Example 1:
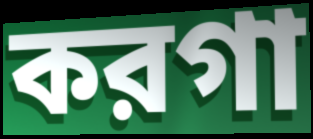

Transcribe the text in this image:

করগা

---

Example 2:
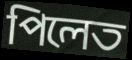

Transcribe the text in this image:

পিলেত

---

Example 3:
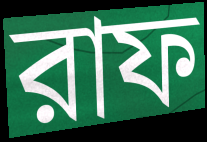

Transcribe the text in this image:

রাফ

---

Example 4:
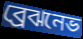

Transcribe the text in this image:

ব্রেঝনেভ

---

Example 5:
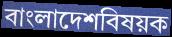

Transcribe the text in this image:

বাংলাদেশবিষয়ক